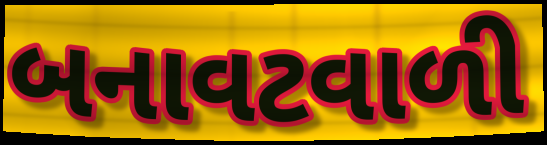
બનાવટવાળી